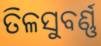
ତିଳସୁବର୍ଣ୍ଣ